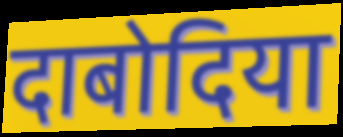
दाबोदिया